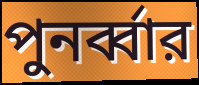
পুনর্ব্বার